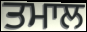
ਤਮਾਲ